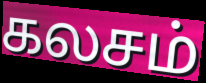
கலசம்